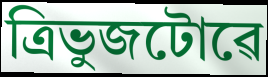
ত্ৰিভুজটোৱে